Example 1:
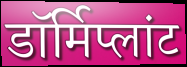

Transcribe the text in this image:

डॉर्मिप्लांट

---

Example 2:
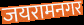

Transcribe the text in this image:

जयरामनगर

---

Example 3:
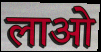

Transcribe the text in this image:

लाओ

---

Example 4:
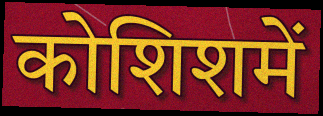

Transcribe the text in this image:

कोशिशमें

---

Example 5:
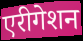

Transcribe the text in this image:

एरीगेशन